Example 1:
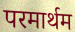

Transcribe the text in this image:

परमार्थम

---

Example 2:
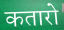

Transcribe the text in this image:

कतारो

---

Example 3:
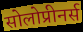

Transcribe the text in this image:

सोलोप्रीनर्स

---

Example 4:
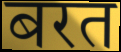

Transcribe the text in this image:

बरत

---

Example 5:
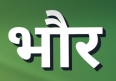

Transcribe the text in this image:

भौर